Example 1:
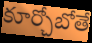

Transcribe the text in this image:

కూర్చోబోతే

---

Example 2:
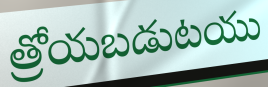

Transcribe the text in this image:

త్రోయబడుటయు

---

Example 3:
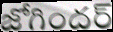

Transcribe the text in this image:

జోగిందర్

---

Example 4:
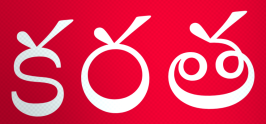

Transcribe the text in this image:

కరత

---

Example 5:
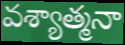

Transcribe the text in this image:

వశ్యాత్మనా